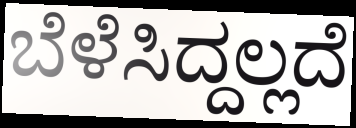
ಬೆಳೆಸಿದ್ದಲ್ಲದೆ